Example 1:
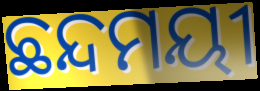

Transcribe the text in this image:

ଛନ୍ଦମୟୀ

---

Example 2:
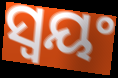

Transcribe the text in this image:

ସ୍ଵୟଂ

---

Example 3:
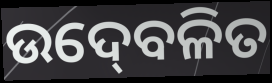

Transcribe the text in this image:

ଉଦ୍‍ବେଳିତ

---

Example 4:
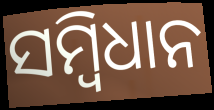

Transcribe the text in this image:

ସମ୍ୱିଧାନ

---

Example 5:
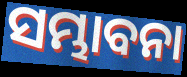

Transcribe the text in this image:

ସମ୍ଭାବନା